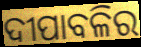
ଦୀପାବଳିର